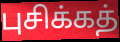
புசிக்கத்